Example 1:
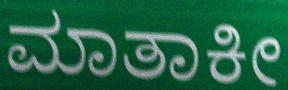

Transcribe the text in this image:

ಮಾತಾಕೀ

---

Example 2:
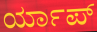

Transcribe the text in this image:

ರ್ಯಾಪ್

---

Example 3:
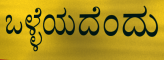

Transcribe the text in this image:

ಒಳ್ಳೆಯದೆಂದು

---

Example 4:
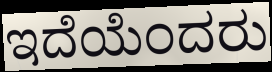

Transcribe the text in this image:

ಇದೆಯೆಂದರು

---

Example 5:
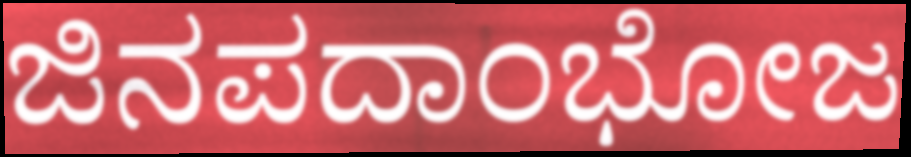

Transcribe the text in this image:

ಜಿನಪದಾಂಭೋಜ